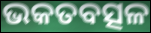
ଭକତବତ୍ସଳ